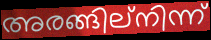
അരങ്ങില്നിന്ന്